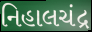
નિહાલચંદ્ર